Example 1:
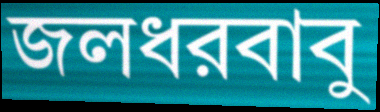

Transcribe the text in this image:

জলধরবাবু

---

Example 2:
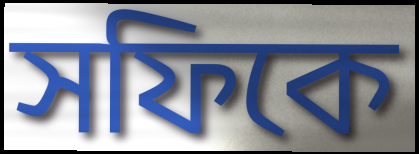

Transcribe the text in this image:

সফিকে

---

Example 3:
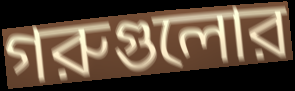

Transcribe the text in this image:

গরুগুলোর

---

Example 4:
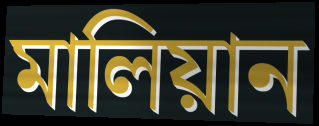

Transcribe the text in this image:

মালিয়ান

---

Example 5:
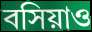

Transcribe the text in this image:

বসিয়াও